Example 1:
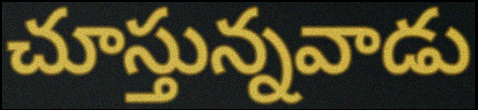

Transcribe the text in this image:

చూస్తున్నవాడు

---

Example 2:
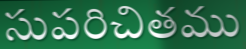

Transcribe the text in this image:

సుపరిచితము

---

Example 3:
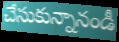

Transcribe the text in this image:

చేసుకున్నానండీ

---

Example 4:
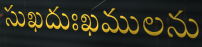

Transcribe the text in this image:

సుఖదుఃఖములను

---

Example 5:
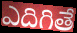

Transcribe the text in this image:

ఎదిగితే